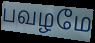
பவழமே